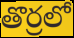
తొర్రలో